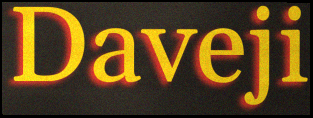
Daveji